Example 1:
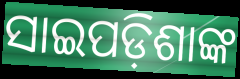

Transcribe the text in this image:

ସାଇପଡ଼ିଶାଙ୍କ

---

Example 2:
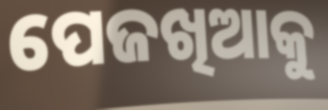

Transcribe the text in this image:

ପେଜଖିଆକୁ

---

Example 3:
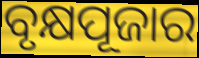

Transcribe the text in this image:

ବୃକ୍ଷପୂଜାର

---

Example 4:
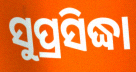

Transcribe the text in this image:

ସୁପ୍ରସିଦ୍ଧା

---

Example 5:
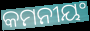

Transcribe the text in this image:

କମନୀୟଂ